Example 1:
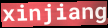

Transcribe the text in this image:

xinjiang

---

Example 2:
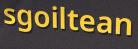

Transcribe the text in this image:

sgoiltean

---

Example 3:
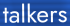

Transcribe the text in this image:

talkers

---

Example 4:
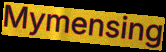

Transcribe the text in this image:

Mymensing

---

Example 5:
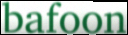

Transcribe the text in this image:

bafoon